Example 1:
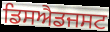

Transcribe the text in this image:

ਡਿਸਐਡਜਸਟ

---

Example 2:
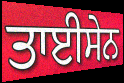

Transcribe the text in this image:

ਤਾਈਸੇਨ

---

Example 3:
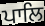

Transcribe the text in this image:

ਪਾਲਿ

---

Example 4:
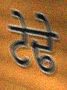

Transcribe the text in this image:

ਟੇਢੇ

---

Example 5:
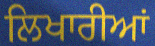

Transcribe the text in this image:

ਲਿਖਾਰੀਆਂ